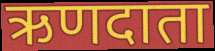
ऋणदाता